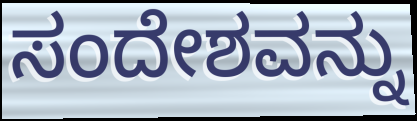
ಸಂದೇಶವನ್ನು